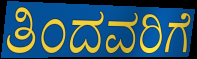
ತಿಂದವರಿಗೆ